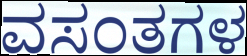
ವಸಂತಗಳ